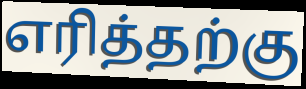
எரித்தற்கு